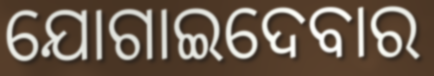
ଯୋଗାଇଦେବାର